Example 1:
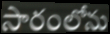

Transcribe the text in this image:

సారంలోను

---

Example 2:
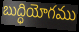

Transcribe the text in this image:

బుద్ధియోగము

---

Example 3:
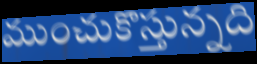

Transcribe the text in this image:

ముంచుకొస్తున్నది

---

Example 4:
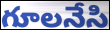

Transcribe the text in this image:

గూలనేసి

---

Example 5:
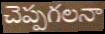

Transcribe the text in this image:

చెప్పగలనా